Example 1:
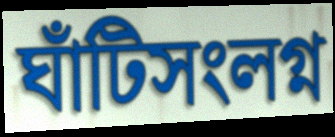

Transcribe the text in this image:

ঘাঁটিসংলগ্ন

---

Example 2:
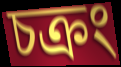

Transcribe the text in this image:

চক্রং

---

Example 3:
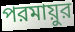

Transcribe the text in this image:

পরমায়ুর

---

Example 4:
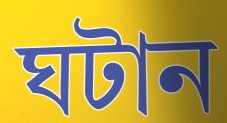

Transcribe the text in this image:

ঘটান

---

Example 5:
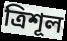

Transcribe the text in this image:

ত্রিশূল